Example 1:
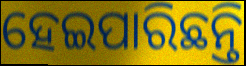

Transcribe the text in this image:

ହେଇପାରିଛନ୍ତି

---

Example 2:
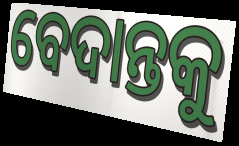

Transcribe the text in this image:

ବେଦାନ୍ତକୁ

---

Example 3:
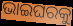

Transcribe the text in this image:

ଭାଇଘରକୁ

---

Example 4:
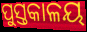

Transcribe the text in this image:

ପୁସ୍ତକାଳୟ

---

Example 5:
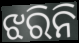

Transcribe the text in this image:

ଝରିନି